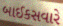
બાઈકસવારે